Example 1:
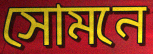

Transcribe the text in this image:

সোমনে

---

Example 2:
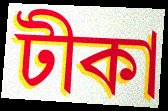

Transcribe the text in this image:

টীকা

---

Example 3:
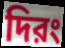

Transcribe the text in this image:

দিরং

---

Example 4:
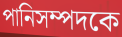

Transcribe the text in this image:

পানিসম্পদকে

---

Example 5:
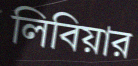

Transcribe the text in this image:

লিবিয়ার